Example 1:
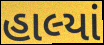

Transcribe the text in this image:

હાલ્યાં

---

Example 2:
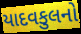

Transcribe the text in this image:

યાદવકુલનો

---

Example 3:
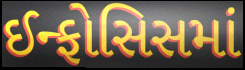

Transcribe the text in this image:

ઈન્ફોસિસમાં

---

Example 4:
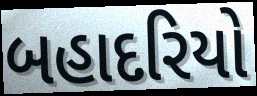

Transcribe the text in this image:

બહાદરિયો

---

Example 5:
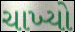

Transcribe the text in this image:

ચાખ્યો